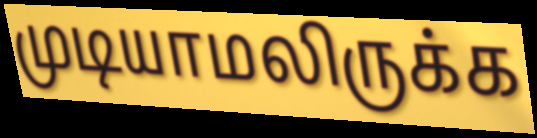
முடியாமலிருக்க